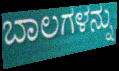
ಬಾಲಗಳನ್ನು